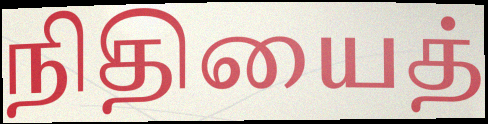
நிதியைத்